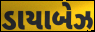
ડાયાબેઝ